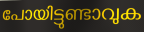
പോയിട്ടുണ്ടാവുക